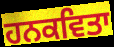
ਹਨਕਵਿਤਾ